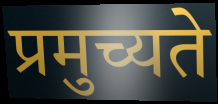
प्रमुच्यते